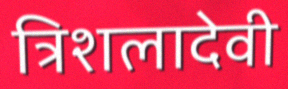
त्रिशलादेवी